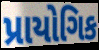
પ્રાયોગિક